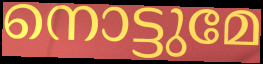
നൊട്ടുമേ